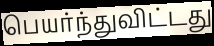
பெயர்ந்துவிட்டது